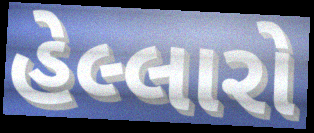
હેલ્લારો